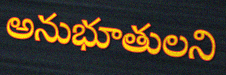
అనుభూతులని